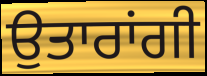
ਉਤਾਰਾਂਗੀ